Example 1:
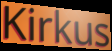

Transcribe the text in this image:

Kirkus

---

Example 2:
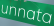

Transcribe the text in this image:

unnata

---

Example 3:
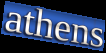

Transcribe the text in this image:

athens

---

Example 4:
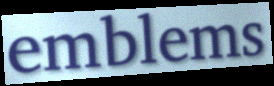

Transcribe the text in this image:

emblems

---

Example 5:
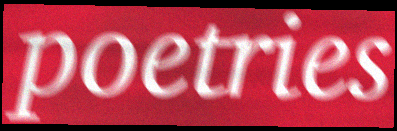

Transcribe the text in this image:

poetries